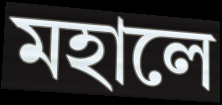
মহালে